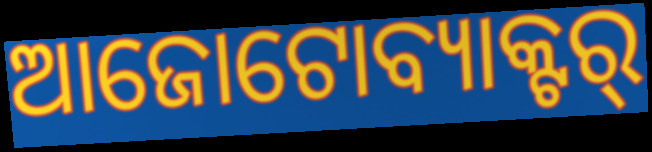
ଆଜୋଟୋବ୍ଯାକ୍ଟର୍